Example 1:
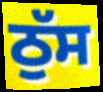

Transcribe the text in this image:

ਠੁੱਸ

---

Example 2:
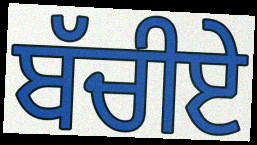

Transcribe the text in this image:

ਬੱਚੀਏ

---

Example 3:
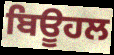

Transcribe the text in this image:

ਬਿਊਹਲ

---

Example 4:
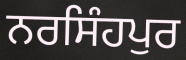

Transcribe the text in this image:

ਨਰਸਿੰਹਪੁਰ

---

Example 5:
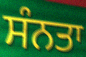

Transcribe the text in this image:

ਸੰਨਤਾ